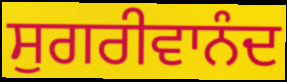
ਸੁਗਰੀਵਾਨੰਦ